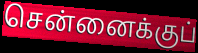
சென்னைக்குப்